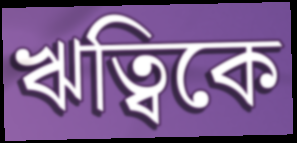
ঋত্বিকে